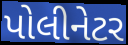
પોલીનેટર